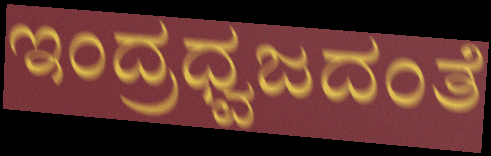
ಇಂದ್ರಧ್ವಜದಂತೆ